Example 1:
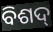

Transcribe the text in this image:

ବିଶଦ୍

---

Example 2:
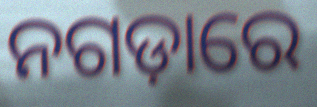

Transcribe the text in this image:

ନଗଡ଼ାରେ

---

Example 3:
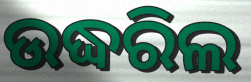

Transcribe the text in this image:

ଉଦ୍ଧରିଲ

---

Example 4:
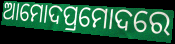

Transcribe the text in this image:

ଆମୋଦପ୍ରମୋଦରେ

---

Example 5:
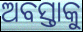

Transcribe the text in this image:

ଅବସ୍ତାକୁ